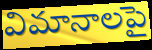
విమానాలపై